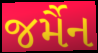
જર્મૈન